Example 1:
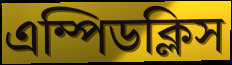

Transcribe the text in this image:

এম্পিডক্লিস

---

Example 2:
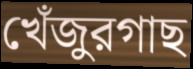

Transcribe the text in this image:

খেঁজুরগাছ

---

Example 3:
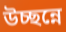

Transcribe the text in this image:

উচ্ছন্নে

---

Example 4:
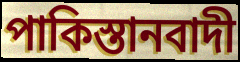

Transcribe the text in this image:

পাকিস্তানবাদী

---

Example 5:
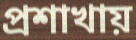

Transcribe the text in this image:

প্রশাখায়